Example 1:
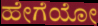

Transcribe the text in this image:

ಹೇಗೆಯೋ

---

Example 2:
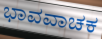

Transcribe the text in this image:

ಭಾವವಾಚಕ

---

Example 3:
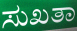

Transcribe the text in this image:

ಸುಖತಾ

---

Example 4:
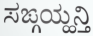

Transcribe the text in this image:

ಸಙ್ಗಯ್ಹನ್ತಿ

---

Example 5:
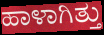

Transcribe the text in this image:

ಹಾಳಾಗಿತ್ತು